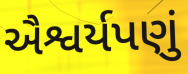
ઐશ્વર્યપણું